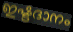
ഇഷ്ടദാനം